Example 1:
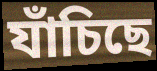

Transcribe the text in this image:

যাঁচিছে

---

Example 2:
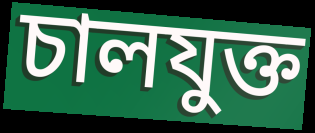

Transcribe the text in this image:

চালযুক্ত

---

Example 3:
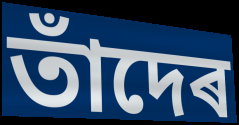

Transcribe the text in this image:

তাঁদেৰ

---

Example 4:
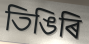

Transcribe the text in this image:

তিঙিৰি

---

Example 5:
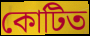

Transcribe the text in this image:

কোটিত